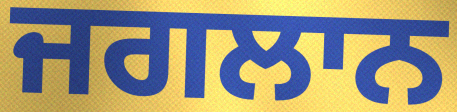
ਜਗਲਾਨ